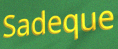
Sadeque